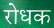
रोधक